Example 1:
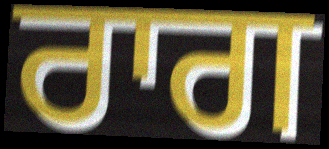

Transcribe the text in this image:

ਰਾਗ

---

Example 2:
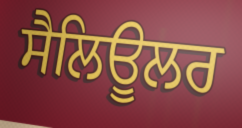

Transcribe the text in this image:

ਸੈਲਿਊਲਰ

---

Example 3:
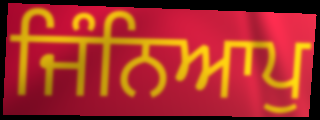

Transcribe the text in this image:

ਜਿੰਨਿਆਪੁ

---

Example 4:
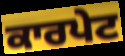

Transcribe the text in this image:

ਕਾਰਪੇਟ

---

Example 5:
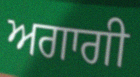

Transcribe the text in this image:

ਅਗਾਗੀ